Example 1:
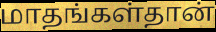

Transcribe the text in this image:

மாதங்கள்தான்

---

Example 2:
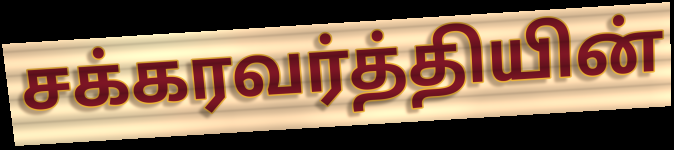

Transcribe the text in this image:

சக்கரவர்த்தியின்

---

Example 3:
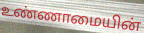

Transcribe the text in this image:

உண்ணாமையின்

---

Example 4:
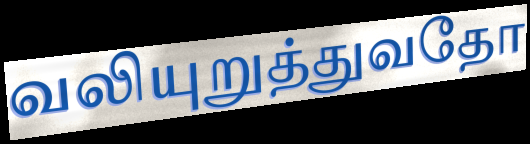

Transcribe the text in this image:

வலியுறுத்துவதோ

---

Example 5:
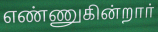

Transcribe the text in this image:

எண்ணுகின்றார்